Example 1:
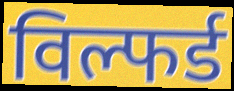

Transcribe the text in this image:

विल्फर्ड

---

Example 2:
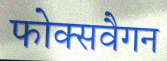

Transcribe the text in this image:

फोक्सवैगन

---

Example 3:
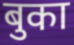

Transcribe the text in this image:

बुका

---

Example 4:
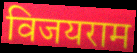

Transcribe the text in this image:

विजयराम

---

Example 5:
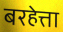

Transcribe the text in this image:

बरहेत्ता